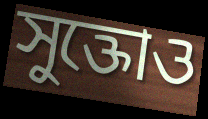
সুক্তোও